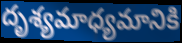
దృశ్యమాధ్యమానికి